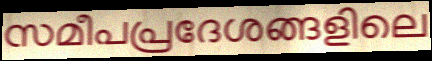
സമീപപ്രദേശങ്ങളിലെ